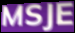
MSJE